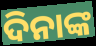
ଦିନାଙ୍କ